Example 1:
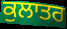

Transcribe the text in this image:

ਕੁਲਾਤਰ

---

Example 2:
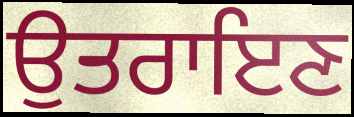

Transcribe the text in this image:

ਉਤਰਾਇਣ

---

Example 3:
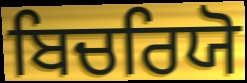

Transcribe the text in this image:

ਬਿਚਰਿਯੋ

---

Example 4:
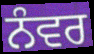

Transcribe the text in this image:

ਨੰਵਰ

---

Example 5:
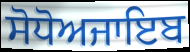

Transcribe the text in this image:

ਸੋਧੋਅਜਾਇਬ